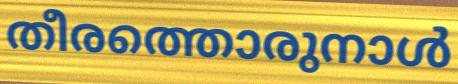
തീരത്തൊരുനാൾ